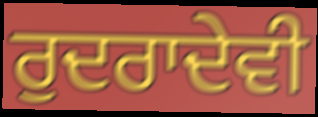
ਰੁਦਰਾਦੇਵੀ